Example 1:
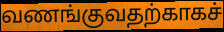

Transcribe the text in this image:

வணங்குவதற்காகச்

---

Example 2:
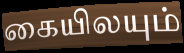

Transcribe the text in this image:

கையிலயும்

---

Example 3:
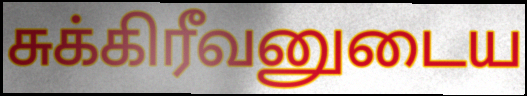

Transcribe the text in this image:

சுக்கிரீவனுடைய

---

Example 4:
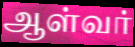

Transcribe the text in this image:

ஆள்வர்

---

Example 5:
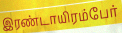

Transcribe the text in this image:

இரண்டாயிரம்பேர்